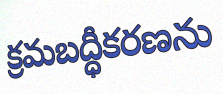
క్రమబద్ధీకరణను